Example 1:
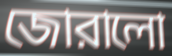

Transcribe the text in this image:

জোরালো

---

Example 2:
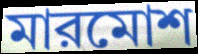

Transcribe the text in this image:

মারমোশ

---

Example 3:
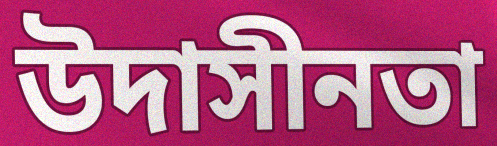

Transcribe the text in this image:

উদাসীনতা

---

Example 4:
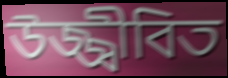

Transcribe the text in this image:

উজ্জ্বীবিত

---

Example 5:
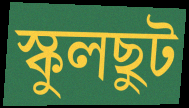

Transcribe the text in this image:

স্কুলছুট